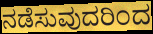
ನಡೆಸುವುದರಿಂದ